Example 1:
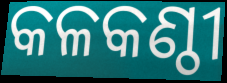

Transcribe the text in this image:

କଳକଣ୍ଠୀ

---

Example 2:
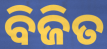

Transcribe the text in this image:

ବିଜିତ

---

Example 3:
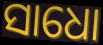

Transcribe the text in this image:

ସାଧୋ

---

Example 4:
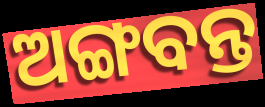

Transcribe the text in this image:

ଅଙ୍ଗବନ୍ତ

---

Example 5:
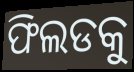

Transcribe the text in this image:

ଫିଲଡକୁ